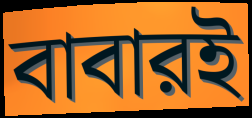
বাবারই